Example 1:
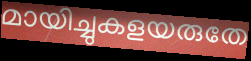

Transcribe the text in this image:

മായിച്ചുകളയരുതേ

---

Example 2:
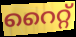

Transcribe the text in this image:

റൈറ്റ്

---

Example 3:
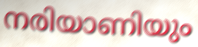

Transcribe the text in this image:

നരിയാണിയും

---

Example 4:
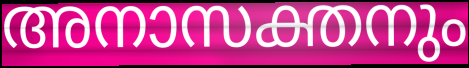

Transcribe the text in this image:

അനാസക്തനും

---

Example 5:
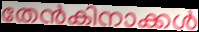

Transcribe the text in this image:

തേൻകിനാക്കൾ